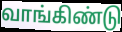
வாங்கிண்டு